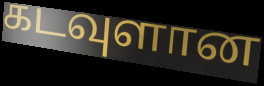
கடவுளான